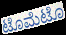
ಟೊಮೆಟೊ